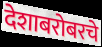
देशाबरोबरचे